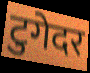
टुगेदर